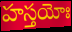
హస్తయోః